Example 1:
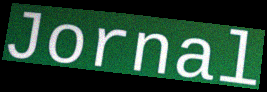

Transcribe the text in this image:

Jornal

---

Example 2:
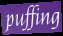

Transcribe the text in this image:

puffing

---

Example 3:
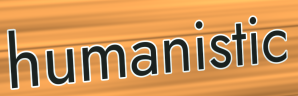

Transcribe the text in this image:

humanistic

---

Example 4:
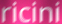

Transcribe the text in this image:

ricini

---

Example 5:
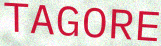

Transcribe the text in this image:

TAGORE